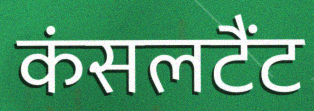
कंसलटैंट